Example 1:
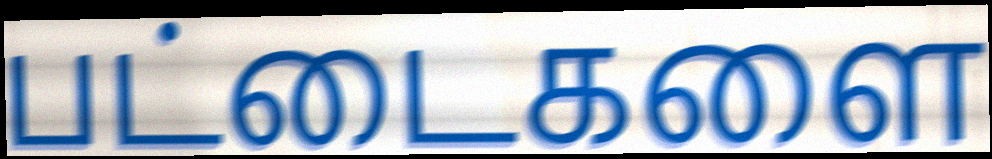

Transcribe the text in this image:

பட்டைகளை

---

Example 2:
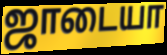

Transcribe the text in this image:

ஜாடையா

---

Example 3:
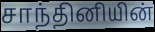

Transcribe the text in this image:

சாந்தினியின்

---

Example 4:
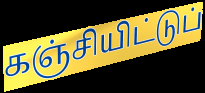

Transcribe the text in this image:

கஞ்சியிட்டுப்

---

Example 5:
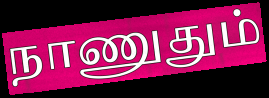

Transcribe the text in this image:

நாணுதும்